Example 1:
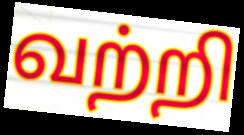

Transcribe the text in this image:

வற்றி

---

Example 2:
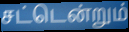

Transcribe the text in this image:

சட்டென்றும்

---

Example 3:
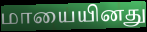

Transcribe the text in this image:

மாயையினது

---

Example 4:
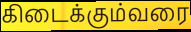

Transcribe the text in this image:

கிடைக்கும்வரை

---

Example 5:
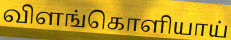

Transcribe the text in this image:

விளங்கொளியாய்